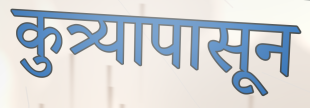
कुत्र्यापासून